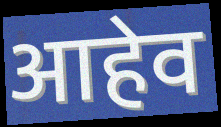
आहेव